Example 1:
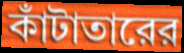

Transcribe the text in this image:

কাঁটাতারের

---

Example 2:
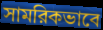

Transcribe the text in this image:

সামরিকভাবে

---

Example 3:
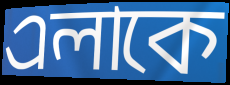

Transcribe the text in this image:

এলাকে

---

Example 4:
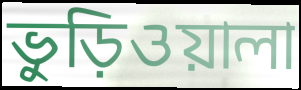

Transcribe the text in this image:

ভুড়িওয়ালা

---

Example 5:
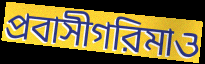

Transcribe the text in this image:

প্রবাসীগরিমাও